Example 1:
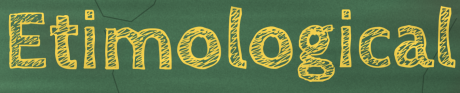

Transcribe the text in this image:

Etimological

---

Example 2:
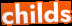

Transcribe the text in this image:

childs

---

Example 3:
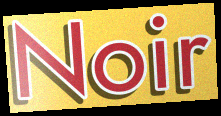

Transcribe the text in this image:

Noir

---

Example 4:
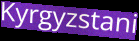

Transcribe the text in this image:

Kyrgyzstani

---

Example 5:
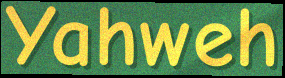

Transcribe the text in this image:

Yahweh